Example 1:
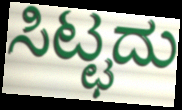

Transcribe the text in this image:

ಸಿಟ್ಟದು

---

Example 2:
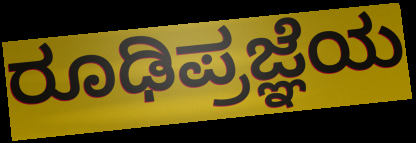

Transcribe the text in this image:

ರೂಢಿಪ್ರಜ್ಞೆಯ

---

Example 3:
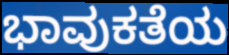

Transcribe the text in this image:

ಭಾವುಕತೆಯ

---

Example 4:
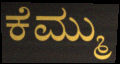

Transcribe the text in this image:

ಕೆಮ್ಮು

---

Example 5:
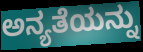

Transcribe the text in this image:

ಅನ್ಯತೆಯನ್ನು